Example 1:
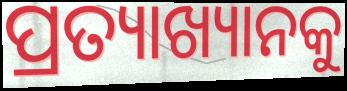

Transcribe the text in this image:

ପ୍ରତ୍ୟାଖ୍ୟାନକୁ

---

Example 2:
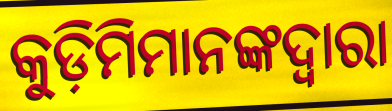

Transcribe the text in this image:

କୁଡ଼ିମିମାନଙ୍କଦ୍ୱାରା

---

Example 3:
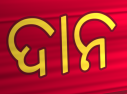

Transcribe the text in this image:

ଦାନ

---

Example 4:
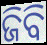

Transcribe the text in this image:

ଜିବି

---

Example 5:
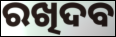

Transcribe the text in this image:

ରଖିଦବ